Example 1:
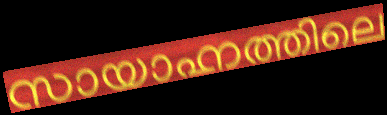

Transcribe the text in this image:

സായാഹ്നത്തിലെ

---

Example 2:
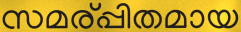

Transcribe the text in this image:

സമര്പ്പിതമായ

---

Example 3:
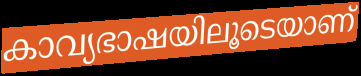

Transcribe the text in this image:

കാവ്യഭാഷയിലൂടെയാണ്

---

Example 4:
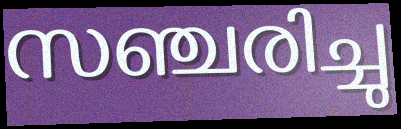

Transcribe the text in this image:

സഞ്ചരിച്ചു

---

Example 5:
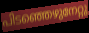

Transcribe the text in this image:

പിടഞ്ഞെഴുനേറ്റു